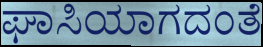
ಘಾಸಿಯಾಗದಂತೆ